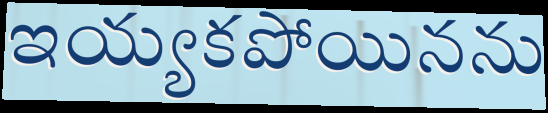
ఇయ్యకపోయినను